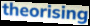
theorising